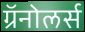
ग्रॅनोलर्स